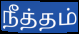
நீத்தம்